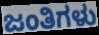
ಜಂತಿಗಳು